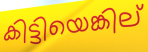
കിട്ടിയെങ്കില്